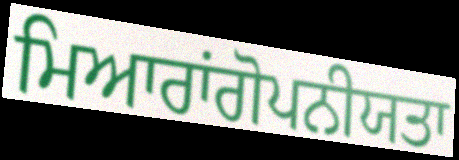
ਮਿਆਰਾਂਗੋਪਨੀਯਤਾ